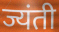
ज्यंती